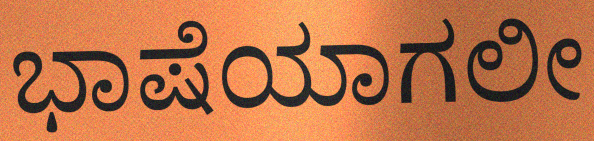
ಭಾಷೆಯಾಗಲೀ